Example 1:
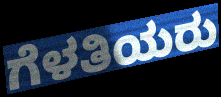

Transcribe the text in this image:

ಗೆಳತಿಯರು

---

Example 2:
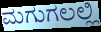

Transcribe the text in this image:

ಮಗುಗಲಲ್ಲಿ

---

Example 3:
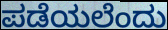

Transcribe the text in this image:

ಪಡೆಯಲೆಂದು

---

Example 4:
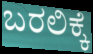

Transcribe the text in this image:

ಬರಲಿಕ್ಕೆ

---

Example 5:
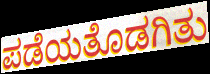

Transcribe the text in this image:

ಪಡೆಯತೊಡಗಿತು